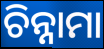
ଚିନ୍ନାମା